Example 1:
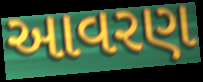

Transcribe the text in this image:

આવરણ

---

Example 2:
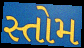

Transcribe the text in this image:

સ્તોમ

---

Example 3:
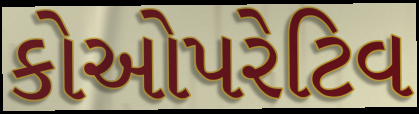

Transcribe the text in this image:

કોઓપરેટિવ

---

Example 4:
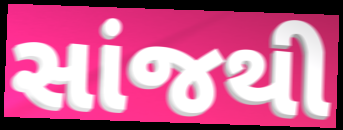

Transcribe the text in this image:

સાંજથી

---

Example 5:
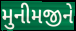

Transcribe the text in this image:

મુનીમજીને